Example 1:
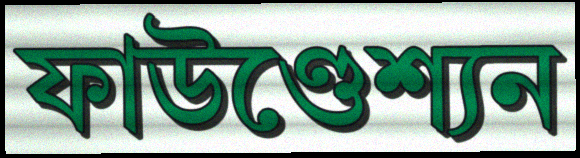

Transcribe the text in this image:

ফাউণ্ডেশ্যন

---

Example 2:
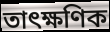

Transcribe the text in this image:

তাৎক্ষণিক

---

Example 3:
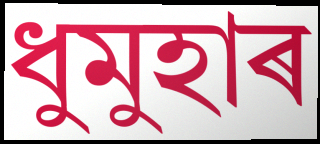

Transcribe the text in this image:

ধুমুহাৰ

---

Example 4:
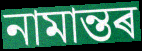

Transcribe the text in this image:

নামান্তৰ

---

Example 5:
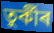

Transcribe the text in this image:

তুৰ্কীৰ